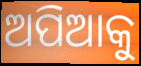
ଅପିଆକୁ